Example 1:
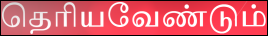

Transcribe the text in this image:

தெரியவேண்டும்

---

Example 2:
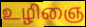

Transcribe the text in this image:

உழிஞை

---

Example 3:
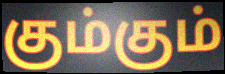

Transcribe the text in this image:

கும்கும்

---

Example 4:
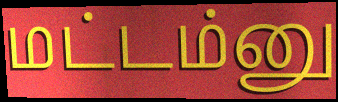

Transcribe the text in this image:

மட்டம்னு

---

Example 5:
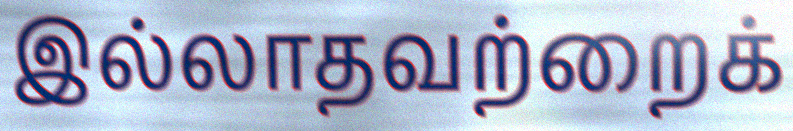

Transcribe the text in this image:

இல்லாதவற்றைக்